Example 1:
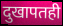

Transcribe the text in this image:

दुखापतही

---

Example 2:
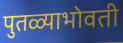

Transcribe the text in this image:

पुतळ्याभोवती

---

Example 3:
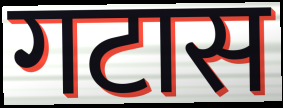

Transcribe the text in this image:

गटास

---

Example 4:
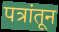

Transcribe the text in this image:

पत्रांतून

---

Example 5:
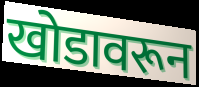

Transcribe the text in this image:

खोडावरून